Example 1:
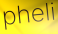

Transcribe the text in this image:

pheli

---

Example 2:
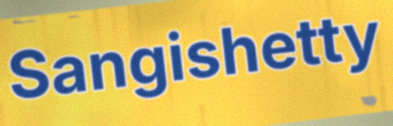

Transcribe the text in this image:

Sangishetty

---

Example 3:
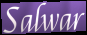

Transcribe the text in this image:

Salwar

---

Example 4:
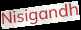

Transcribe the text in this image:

Nisigandh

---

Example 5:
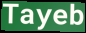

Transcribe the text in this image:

Tayeb